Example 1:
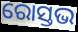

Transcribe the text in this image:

ରୋସ୍ତଭ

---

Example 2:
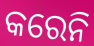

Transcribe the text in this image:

କରେନି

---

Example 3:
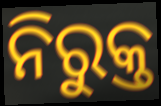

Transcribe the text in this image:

ନିରୁକ୍ତ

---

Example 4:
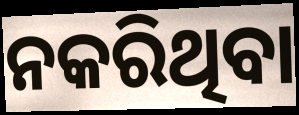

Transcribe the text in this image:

ନକରିଥିବା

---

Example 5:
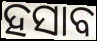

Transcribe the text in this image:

ହସାବ